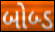
બોબ્ડ